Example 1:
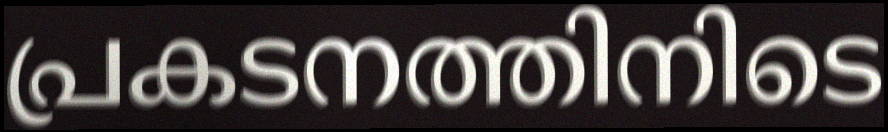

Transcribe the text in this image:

പ്രകടനത്തിനിടെ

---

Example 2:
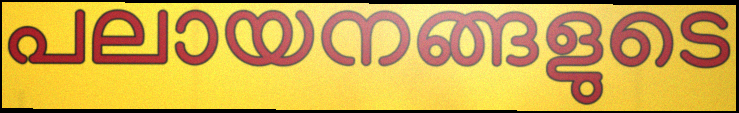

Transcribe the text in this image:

പലായനങ്ങളുടെ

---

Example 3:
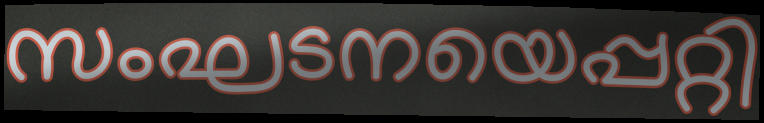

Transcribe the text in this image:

സംഘടനയെപ്പറ്റി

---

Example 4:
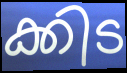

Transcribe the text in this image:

ക്കിട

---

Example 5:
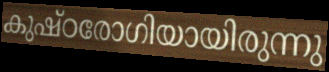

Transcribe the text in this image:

കുഷ്ഠരോഗിയായിരുന്നു